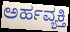
ಅರ್ಹವ್ಯಕ್ತಿ